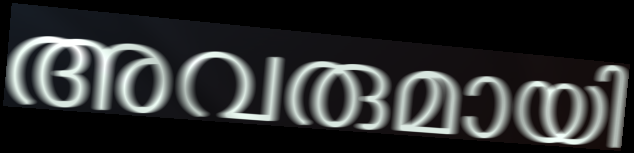
അവരുമായി